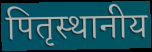
पितृस्थानीय